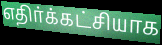
எதிர்க்கட்சியாக